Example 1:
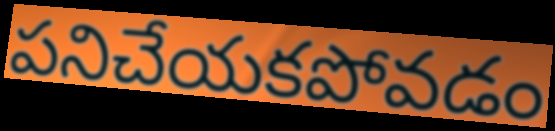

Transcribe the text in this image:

పనిచేయకపోవడం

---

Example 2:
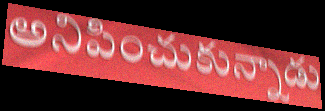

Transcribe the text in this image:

అనిపించుకున్నాడు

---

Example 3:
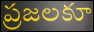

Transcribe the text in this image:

ప్రజలకూ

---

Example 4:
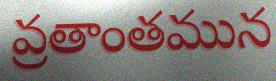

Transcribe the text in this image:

వ్రతాంతమున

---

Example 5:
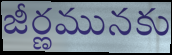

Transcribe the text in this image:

జీర్ణమునకు